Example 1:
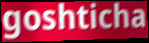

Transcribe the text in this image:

goshticha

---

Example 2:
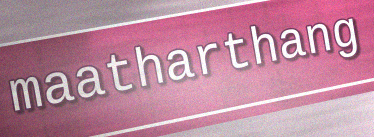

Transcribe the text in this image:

maatharthang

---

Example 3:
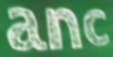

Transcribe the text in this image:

anc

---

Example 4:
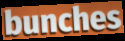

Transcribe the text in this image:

bunches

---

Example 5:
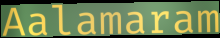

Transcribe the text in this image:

Aalamaram